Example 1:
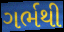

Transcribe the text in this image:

ગર્ભથી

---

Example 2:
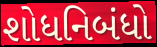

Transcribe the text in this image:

શોધનિબંધો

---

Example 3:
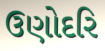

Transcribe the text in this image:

ઉણોદરિ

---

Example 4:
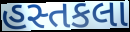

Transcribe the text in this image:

હસ્તકલા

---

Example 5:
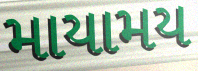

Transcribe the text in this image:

માયામય